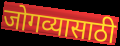
जोगव्यासाठी